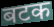
बटक